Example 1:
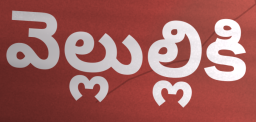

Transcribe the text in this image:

వెల్లుల్లికి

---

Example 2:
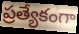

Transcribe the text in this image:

ప్రత్యేకంగా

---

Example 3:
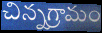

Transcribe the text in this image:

చిన్నగ్రామం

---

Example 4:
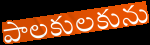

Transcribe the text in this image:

పాలకులకును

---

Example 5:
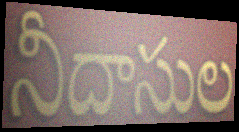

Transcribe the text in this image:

నీదాసుల